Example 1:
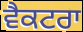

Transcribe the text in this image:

ਵੈਕਟਰਾ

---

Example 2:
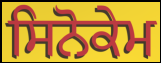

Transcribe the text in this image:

ਸਿਨੋਕੇਮ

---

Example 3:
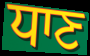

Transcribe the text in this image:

ਧਾਣ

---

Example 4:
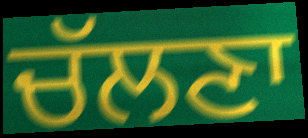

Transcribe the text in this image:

ਚੱਲਣਾ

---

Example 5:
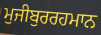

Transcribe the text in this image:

ਮੁਜੀਬੁਰਰਹਮਾਨ